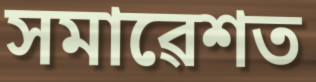
সমাৱেশত